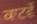
ਕਾਟਵੇਂ